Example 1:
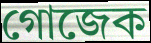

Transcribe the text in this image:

গোজেক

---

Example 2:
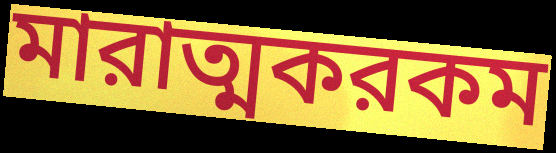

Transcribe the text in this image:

মারাত্মকরকম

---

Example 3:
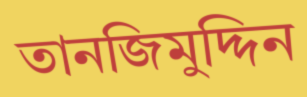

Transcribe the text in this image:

তানজিমুদ্দিন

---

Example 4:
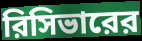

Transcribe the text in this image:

রিসিভারের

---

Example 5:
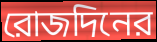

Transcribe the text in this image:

রোজদিনের